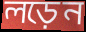
লড়েন